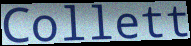
Collett